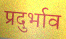
प्रदुर्भाव